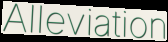
Alleviation